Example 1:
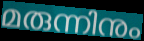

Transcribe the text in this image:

മരുന്നിനും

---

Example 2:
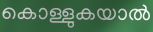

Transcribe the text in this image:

കൊള്ളുകയാൽ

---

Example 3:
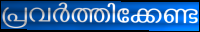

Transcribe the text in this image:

പ്രവർത്തിക്കേണ്ട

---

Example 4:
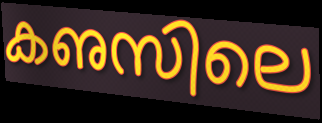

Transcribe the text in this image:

കഌസിലെ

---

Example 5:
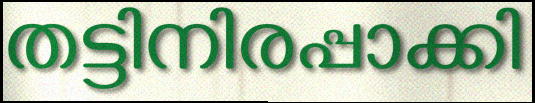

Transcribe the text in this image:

തട്ടിനിരപ്പാക്കി